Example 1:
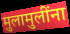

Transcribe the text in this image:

मुलामुलींना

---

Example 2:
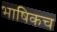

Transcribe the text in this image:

भाषिकच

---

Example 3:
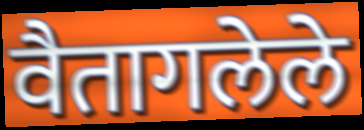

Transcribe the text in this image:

वैतागलेले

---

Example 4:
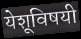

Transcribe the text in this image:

येशूविषयी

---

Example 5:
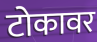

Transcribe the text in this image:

टोकावर